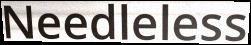
Needleless